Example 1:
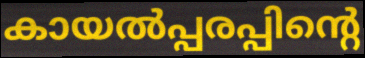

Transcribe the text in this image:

കായൽപ്പരപ്പിന്റെ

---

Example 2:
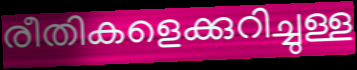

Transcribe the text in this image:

രീതികളെക്കുറിച്ചുള്ള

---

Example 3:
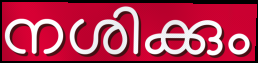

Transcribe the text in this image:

നശിക്കും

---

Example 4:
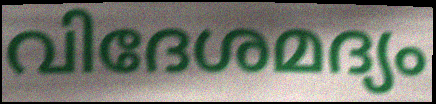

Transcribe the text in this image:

വിദേശമദ്യം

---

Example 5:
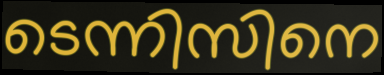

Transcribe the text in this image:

ടെന്നിസിനെ